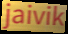
jaivik